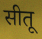
सीतू